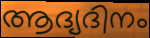
ആദ്യദിനം